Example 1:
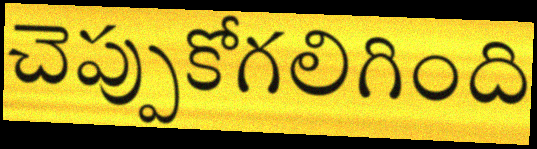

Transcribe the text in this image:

చెప్పుకోగలిగింది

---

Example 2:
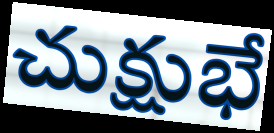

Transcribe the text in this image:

చుక్షుభే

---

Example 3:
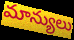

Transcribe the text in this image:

మాన్యులు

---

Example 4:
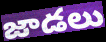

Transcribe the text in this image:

జాడలు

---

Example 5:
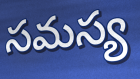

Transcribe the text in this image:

సమస్య